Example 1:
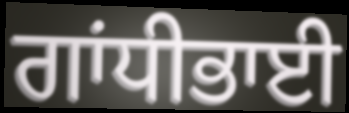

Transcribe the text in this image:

ਗਾਂਧੀਭਾਈ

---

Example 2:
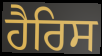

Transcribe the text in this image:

ਹੈਰਿਸ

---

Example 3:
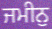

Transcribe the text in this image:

ਜਮੀਨੁ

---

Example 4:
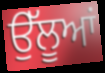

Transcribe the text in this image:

ਉੱਲੂਆਂ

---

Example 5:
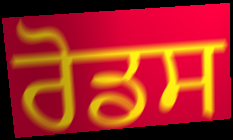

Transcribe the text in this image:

ਰੋਡਸ